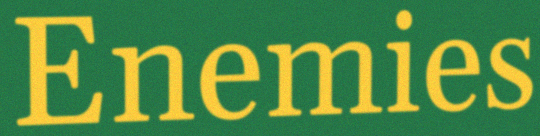
Enemies